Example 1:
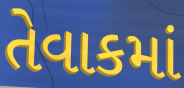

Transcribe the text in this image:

તેવાકમાં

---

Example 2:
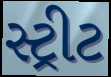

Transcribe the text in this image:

સ્ટ્રીટ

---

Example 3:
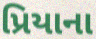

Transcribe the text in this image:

પ્રિયાના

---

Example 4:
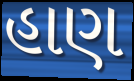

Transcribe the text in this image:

હાણ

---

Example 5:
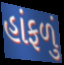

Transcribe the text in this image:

હાંફળું